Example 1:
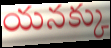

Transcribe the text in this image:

యనక్కు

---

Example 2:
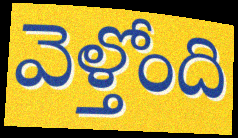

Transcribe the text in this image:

వెళ్తోంది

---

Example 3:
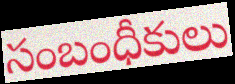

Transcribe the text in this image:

సంబంధీకులు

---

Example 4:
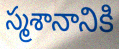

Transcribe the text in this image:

స్మశానానికి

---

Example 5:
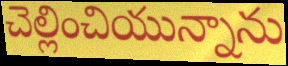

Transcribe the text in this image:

చెల్లించియున్నాను